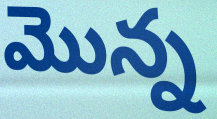
మొన్న